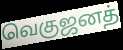
வெகுஜனத்